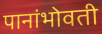
पानांभोवती